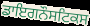
ਡਾਇਗਨੌਸਟਿਕਸ